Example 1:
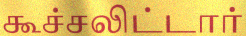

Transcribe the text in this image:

கூச்சலிட்டார்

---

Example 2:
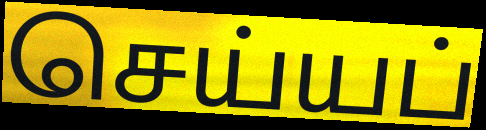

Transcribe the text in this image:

செய்யப்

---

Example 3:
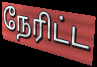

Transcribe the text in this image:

நேரிட்ட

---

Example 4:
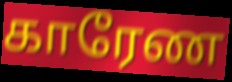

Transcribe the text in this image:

காரேண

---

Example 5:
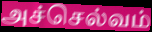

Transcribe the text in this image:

அச்செல்வம்